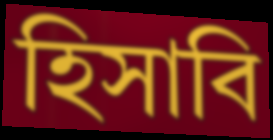
হিসাবি